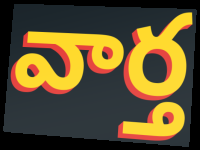
వార్త